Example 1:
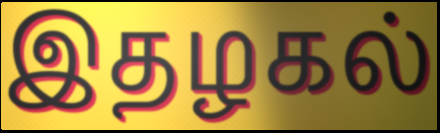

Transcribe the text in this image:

இதழகல்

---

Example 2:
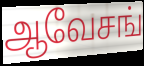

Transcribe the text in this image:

ஆவேசங்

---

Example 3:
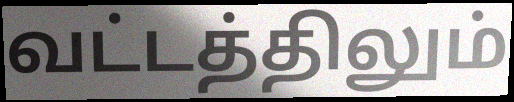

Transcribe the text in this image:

வட்டத்திலும்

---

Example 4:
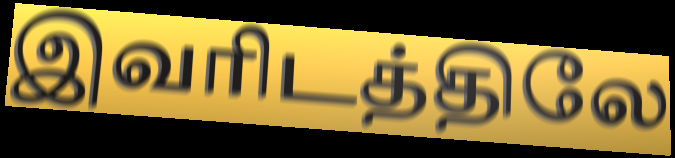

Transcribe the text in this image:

இவரிடத்திலே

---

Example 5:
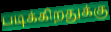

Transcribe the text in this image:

படிக்கிறதுக்கு